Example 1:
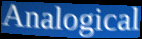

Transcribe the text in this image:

Analogical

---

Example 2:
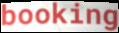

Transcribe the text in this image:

booking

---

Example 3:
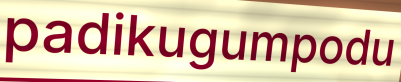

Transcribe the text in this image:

padikugumpodu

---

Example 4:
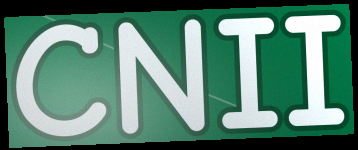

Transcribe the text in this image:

CNII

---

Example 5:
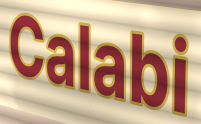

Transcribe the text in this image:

Calabi